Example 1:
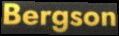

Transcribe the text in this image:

Bergson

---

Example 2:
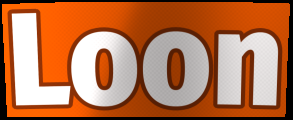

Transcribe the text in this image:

Loon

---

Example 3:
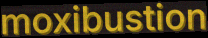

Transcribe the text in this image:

moxibustion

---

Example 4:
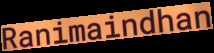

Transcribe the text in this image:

Ranimaindhan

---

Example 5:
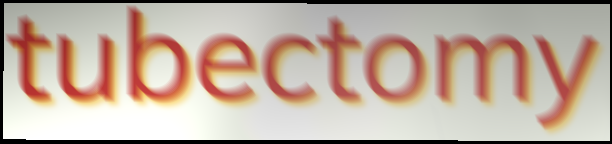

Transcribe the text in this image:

tubectomy